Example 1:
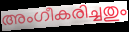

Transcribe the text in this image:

അംഗീകരിച്ചതും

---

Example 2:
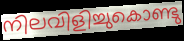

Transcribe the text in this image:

നിലവിളിച്ചുകൊണ്ടു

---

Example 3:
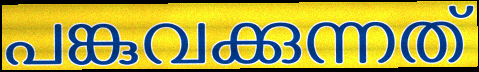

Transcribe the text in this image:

പങ്കുവക്കുന്നത്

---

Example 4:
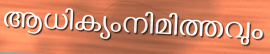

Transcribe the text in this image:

ആധിക്യംനിമിത്തവും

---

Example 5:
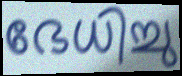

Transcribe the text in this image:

ഭേധിച്ചു